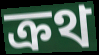
ক্রথ